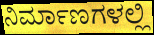
ನಿರ್ಮಾಣಗಳಲ್ಲಿ